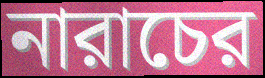
নারাচের